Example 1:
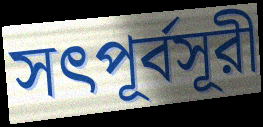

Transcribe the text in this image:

সৎপূর্বসূরী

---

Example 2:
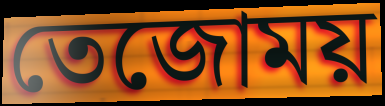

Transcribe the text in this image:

তেজোময়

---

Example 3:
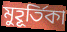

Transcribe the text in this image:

মুহূর্তিকা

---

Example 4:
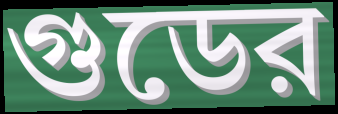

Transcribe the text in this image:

গুডের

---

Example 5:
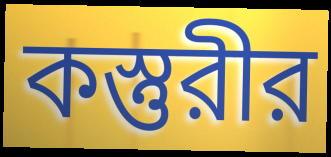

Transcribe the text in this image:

কস্তুরীর